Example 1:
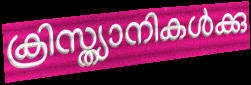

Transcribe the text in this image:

ക്രിസ്ത്യാനികൾക്കു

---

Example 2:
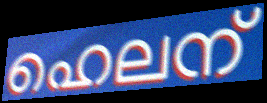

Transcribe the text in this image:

ഹെലന്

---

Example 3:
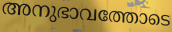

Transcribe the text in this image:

അനുഭാവത്തോടെ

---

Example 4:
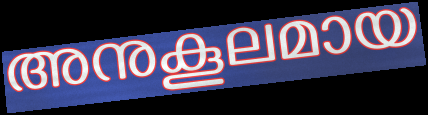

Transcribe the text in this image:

അനുകൂലമായ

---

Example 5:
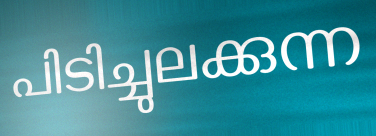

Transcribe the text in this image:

പിടിച്ചുലക്കുന്ന